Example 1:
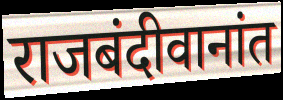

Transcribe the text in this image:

राजबंदीवानांत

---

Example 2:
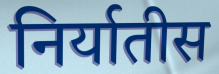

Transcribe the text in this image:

निर्यातीस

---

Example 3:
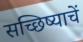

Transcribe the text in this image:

सच्छिष्याचें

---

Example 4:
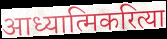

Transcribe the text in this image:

आध्यात्मिकरित्या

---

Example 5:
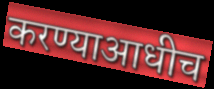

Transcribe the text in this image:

करण्याआधीच